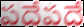
పదేపదే